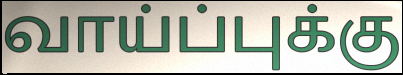
வாய்ப்புக்கு